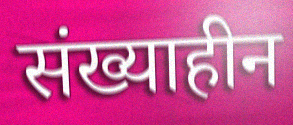
संख्याहीन